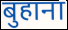
बुहाना